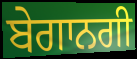
ਬੇਗਾਨਗੀ